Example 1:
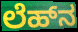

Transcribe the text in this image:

ಲೆಹ್‌ನ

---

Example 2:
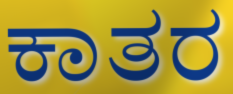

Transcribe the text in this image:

ಕಾತರ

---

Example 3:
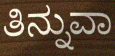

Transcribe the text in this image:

ತಿನ್ನುವಾ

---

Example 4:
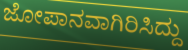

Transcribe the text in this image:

ಜೋಪಾನವಾಗಿರಿಸಿದ್ದು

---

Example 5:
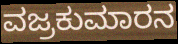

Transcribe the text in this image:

ವಜ್ರಕುಮಾರನ